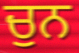
ਚੁਨ